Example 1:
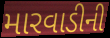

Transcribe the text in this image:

મારવાડીની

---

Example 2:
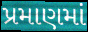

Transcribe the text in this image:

પ્રમાણમાં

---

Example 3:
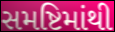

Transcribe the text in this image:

સમષ્ટિમાંથી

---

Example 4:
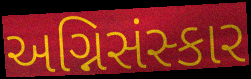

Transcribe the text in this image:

અગ્નિસંસ્કાર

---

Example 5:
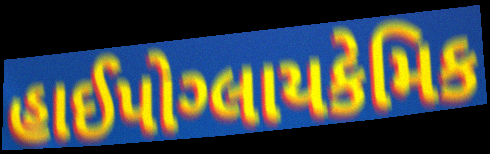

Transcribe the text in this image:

હાઈપોગ્લાયકેમિક